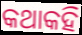
କଥାକହି